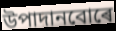
উপাদানবোৰে